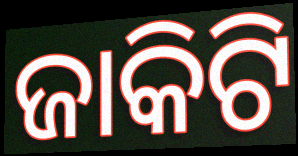
ଜାକିଟି